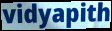
vidyapith